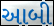
આબી